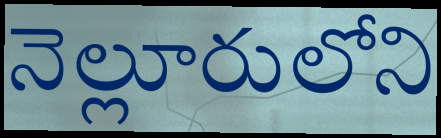
నెల్లూరులోని